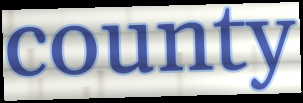
county